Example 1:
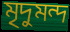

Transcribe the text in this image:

মৃদুমন্দ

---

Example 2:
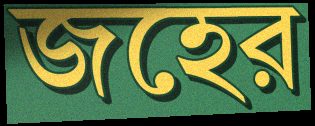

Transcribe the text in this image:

জহের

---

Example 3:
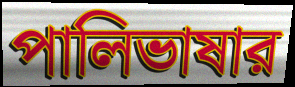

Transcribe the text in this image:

পালিভাষার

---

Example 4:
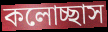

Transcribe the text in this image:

কলোচ্ছাস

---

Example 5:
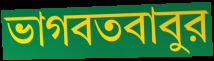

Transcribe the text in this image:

ভাগবতবাবুর